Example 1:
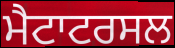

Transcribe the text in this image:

ਮੈਟਾਟਰਸਲ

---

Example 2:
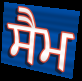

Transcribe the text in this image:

ਸੈਮ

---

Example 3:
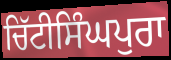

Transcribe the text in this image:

ਚਿੱਟੀਸਿੰਘਪੁਰਾ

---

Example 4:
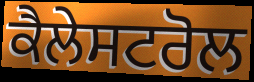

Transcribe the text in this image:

ਕੈਲੇਸਟਰੋਲ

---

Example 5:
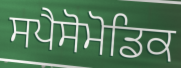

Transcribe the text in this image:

ਸਪੈਸੋਮੋਡਿਕ